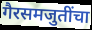
गैरसमजुतींचा